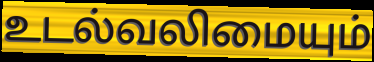
உடல்வலிமையும்